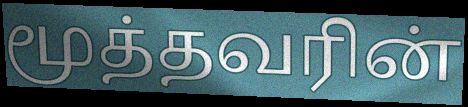
மூத்தவரின்